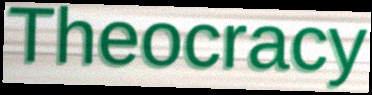
Theocracy